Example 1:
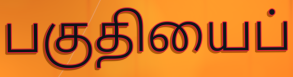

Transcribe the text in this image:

பகுதியைப்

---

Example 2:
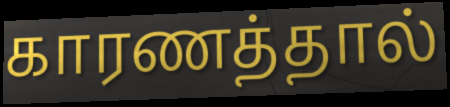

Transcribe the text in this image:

காரணத்தால்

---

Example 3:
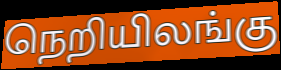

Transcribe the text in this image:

நெறியிலங்கு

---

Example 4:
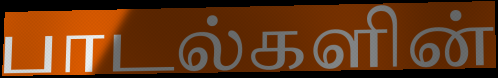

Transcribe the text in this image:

பாடல்களின்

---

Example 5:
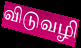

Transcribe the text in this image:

விடுவழி